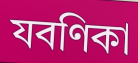
যবণিকা